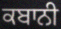
ਕਬਾਨੀ